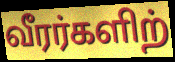
வீரர்களிற்